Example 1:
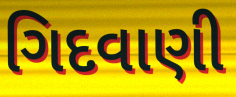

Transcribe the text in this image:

ગિદવાણી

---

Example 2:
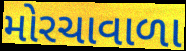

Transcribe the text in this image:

મોરચાવાળા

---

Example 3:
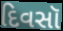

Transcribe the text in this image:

દિવસૉ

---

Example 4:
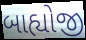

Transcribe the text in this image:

બાહ્યોજી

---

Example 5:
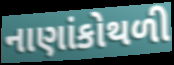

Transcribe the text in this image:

નાણાંકોથળી